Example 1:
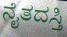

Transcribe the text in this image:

ನೈತದಸ್ತಿ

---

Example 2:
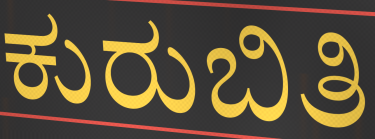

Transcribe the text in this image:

ಕುರುಬಿತಿ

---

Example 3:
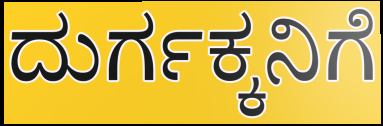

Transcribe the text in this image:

ದುರ್ಗಕ್ಕನಿಗೆ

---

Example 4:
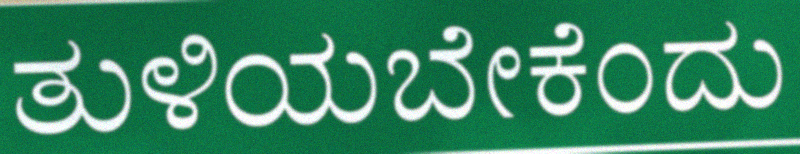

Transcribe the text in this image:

ತುಳಿಯಬೇಕೆಂದು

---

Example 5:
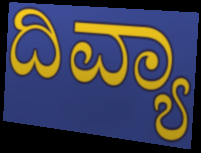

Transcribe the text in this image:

ದಿವ್ಯಾ